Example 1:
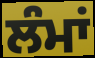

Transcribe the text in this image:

ਲੰਮਾਂ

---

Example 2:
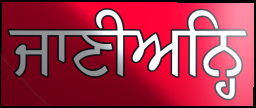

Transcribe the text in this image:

ਜਾਣੀਅਨ੍ਹਿ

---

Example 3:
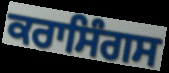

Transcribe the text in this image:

ਕਰਾਸਿੰਗਸ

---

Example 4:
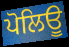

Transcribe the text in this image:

ਪੋਲਿਊ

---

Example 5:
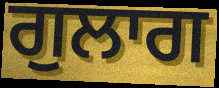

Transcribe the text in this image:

ਗੁਲਾਗ